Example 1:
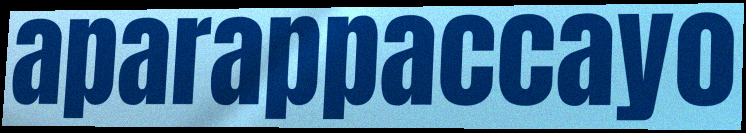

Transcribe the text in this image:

aparappaccayo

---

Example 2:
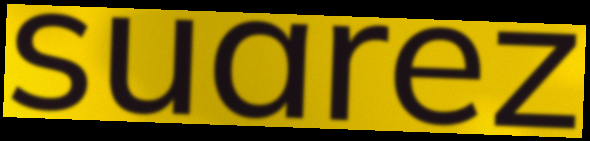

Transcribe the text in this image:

suarez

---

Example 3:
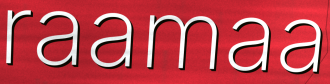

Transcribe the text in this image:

raamaa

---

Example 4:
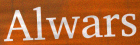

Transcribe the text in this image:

Alwars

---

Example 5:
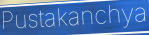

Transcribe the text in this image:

Pustakanchya